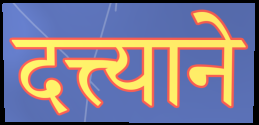
दत्त्याने